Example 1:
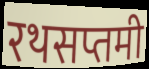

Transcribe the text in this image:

रथसप्तमी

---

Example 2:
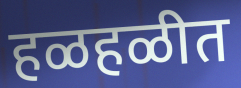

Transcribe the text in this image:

हळहळीत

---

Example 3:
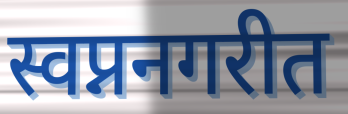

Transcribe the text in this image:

स्वप्ननगरीत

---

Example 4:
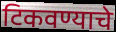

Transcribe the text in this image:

टिकवण्याचे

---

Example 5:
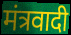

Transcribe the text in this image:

मंत्रवादी